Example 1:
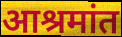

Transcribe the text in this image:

आश्रमांत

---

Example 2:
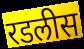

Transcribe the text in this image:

रडलीस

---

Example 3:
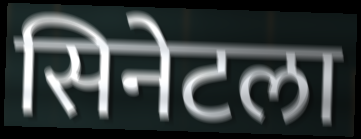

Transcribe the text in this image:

सिनेटला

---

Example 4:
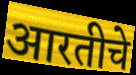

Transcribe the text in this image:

आरतीचे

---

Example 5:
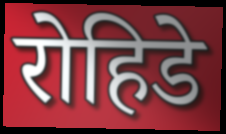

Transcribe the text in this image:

रोहिडे